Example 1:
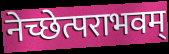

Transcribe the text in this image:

नेच्छेत्पराभवम्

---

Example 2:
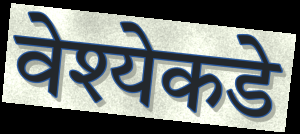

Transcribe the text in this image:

वेश्येकडे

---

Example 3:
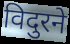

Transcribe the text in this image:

विदुरने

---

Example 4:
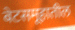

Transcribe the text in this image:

बेटसमूहातील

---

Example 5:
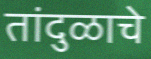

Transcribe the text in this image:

तांदुळाचे